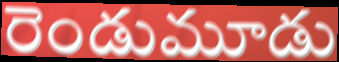
రెండుమూడు